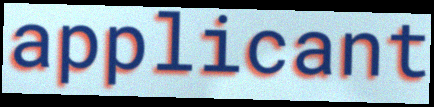
applicant